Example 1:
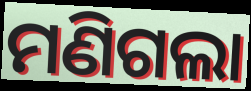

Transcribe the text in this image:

ମଣିଗଲା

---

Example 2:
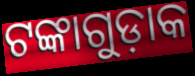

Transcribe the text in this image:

ଟଙ୍କାଗୁଡ଼ାକ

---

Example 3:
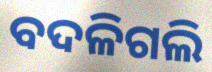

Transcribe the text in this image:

ବଦଳିଗଲି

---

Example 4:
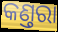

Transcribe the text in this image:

କଣ୍ତରା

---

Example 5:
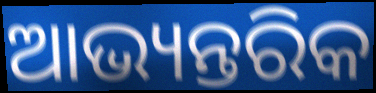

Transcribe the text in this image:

ଆଭ୍ୟନ୍ତରିକ